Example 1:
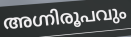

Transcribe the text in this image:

അഗ്നിരൂപവും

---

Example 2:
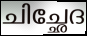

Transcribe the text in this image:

ചിച്ഛേദ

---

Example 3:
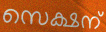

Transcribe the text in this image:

സെക്ഷന്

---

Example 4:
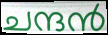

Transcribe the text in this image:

ചന്ദൻ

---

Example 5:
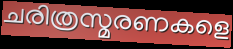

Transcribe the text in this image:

ചരിത്രസ്മരണകളെ